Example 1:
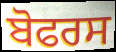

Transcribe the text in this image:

ਬੋਫਰਸ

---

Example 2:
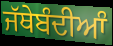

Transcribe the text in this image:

ਜੱਥੇਬੰਦੀਆੰ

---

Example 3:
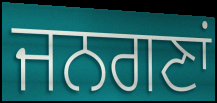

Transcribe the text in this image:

ਜਨਗਣਾਂ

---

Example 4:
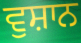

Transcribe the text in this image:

ਵੁਸ਼ਾਨ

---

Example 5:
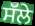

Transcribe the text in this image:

ਸੱਲੇ